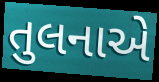
તુલનાએ